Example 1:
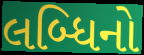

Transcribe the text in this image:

લબ્ધિનો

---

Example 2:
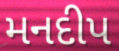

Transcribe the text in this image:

મનદીપ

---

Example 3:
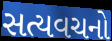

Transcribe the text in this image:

સત્યવચનો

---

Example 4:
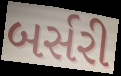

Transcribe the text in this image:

બર્સરી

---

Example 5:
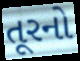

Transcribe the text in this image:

તૂરનો